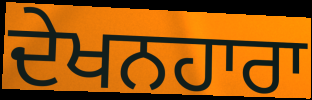
ਦੇਖਨਹਾਰਾ